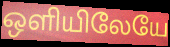
ஒளியிலேயே